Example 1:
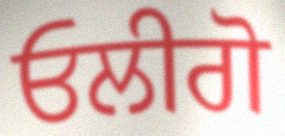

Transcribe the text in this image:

ਓਲੀਗੋ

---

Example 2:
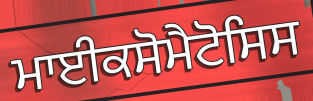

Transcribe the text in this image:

ਮਾਈਕਸੋਮੈਟੋਸਿਸ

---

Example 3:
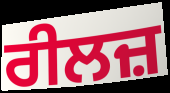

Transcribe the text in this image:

ਰੀਲਜ਼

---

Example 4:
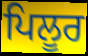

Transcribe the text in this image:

ਪਿਲੂਰ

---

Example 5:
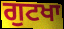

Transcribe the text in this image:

ਗੁਟਖਾ